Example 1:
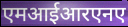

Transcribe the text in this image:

एमआईआरएनए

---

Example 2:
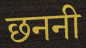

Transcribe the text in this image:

छननी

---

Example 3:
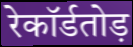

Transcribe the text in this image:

रेकॉर्डतोड़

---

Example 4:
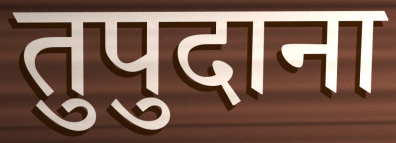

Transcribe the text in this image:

तुपुदाना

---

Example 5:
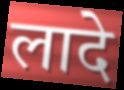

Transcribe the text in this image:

लादे